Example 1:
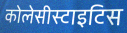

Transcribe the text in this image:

कोलेसीस्टाइटिस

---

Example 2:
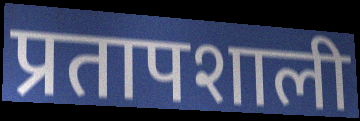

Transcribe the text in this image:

प्रतापशाली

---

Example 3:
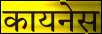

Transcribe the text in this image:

कायनेस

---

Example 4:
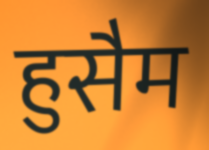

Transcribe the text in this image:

हुसैम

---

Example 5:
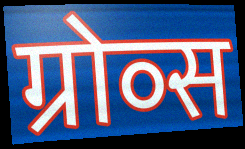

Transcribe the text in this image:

ग्रोव्स